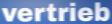
vertrieb